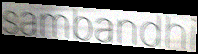
sambandhi